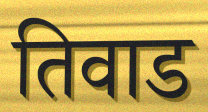
तिवाड